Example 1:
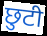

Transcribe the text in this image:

छुटी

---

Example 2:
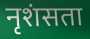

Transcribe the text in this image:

नृशंसता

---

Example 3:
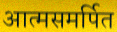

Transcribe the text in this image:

आत्मसमर्पित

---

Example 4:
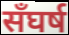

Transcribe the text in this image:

सँघर्ष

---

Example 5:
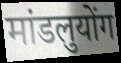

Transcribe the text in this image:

मांडलुयोंग